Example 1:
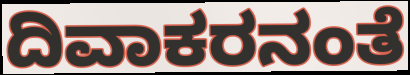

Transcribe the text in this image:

ದಿವಾಕರನಂತೆ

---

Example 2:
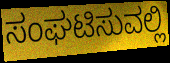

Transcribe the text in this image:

ಸಂಘಟಿಸುವಲ್ಲಿ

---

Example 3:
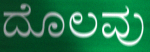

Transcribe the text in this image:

ದೊಲವು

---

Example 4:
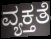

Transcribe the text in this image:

ವ್ಯಕ್ತತೆ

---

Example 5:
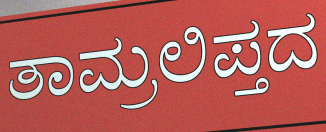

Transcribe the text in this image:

ತಾಮ್ರಲಿಪ್ತದ